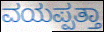
ವಯಪ್ಪತ್ತಾ